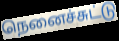
நெனைச்சுட்டு